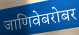
जाणिवेबरोबर